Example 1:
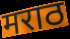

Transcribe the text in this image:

मराठ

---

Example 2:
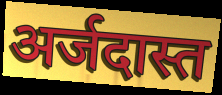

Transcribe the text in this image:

अर्जदास्त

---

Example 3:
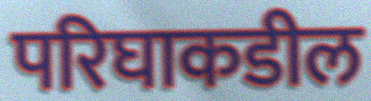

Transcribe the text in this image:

परिघाकडील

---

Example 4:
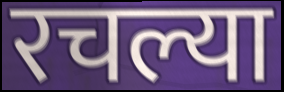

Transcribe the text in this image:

रचल्या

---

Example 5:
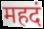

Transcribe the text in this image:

महदं